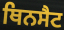
ਥਿਨਸੈਟ